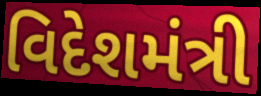
વિદેશમંત્રી